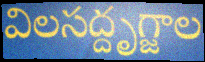
విలసద్దృగ్జాల